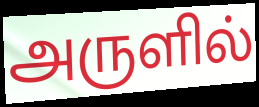
அருளில்